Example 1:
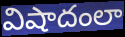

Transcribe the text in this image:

విషాదంలా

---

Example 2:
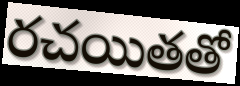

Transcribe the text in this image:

రచయితతో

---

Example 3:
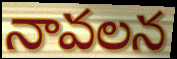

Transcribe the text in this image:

నావలన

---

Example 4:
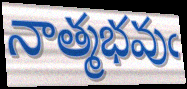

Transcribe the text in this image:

నాత్మభవుఁ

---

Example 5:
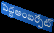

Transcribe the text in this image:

పెద్దఅంబర్పేట్